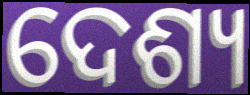
ଦେଶ୍ୟ